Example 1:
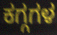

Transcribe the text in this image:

ಕಗ್ಗಗಳ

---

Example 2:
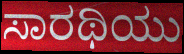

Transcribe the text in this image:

ಸಾರಥಿಯು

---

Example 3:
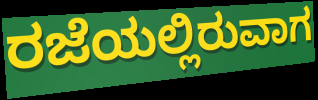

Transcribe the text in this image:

ರಜೆಯಲ್ಲಿರುವಾಗ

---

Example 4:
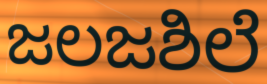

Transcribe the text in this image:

ಜಲಜಶಿಲೆ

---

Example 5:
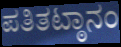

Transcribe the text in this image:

ಪತಿತಟ್ಠಾನಂ